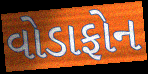
વોડાફોન